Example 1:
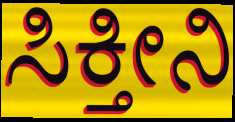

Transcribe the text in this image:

ಸಿಕ್ತೀನಿ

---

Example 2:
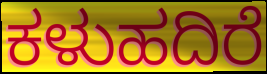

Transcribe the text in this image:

ಕಳುಹದಿರೆ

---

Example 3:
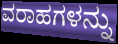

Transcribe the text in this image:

ವರಾಹಗಳನ್ನು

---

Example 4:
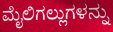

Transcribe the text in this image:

ಮೈಲಿಗಲ್ಲುಗಳನ್ನು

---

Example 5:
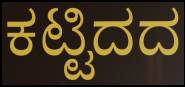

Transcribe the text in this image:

ಕಟ್ಟಿದದ